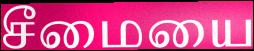
சீமையை